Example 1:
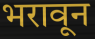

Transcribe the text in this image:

भरावून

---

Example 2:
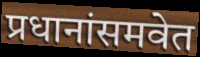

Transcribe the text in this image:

प्रधानांसमवेत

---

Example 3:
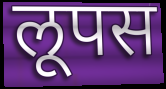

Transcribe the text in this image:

लूपस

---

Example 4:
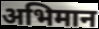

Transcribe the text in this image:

अभिमान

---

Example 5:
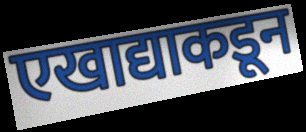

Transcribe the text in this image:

एखाद्याकडून